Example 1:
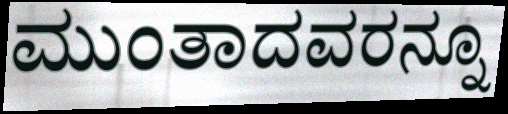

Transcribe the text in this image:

ಮುಂತಾದವರನ್ನೂ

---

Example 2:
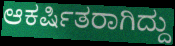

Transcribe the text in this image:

ಆಕರ್ಷಿತರಾಗಿದ್ದು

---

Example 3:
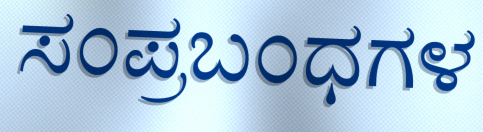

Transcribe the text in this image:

ಸಂಪ್ರಬಂಧಗಳ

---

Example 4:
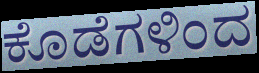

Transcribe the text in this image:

ಕೊಡೆಗಳಿಂದ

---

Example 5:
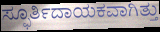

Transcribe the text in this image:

ಸ್ಫೂರ್ತಿದಾಯಕವಾಗಿತ್ತು